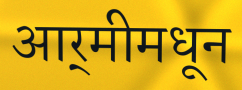
आर्मीमधून